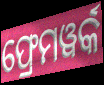
ଫ୍ରେମୱର୍କ